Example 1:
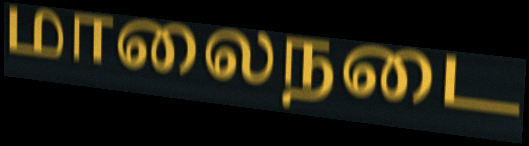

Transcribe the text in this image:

மாலைநடை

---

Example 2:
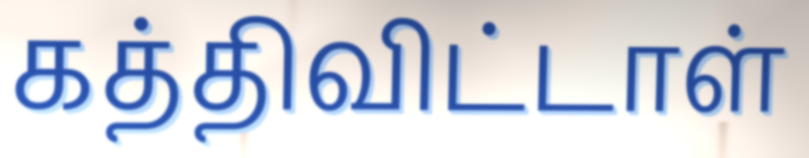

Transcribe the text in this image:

கத்திவிட்டாள்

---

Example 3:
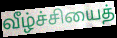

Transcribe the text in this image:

வீழ்ச்சியைத்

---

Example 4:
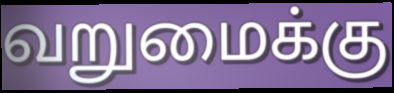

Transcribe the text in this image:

வறுமைக்கு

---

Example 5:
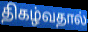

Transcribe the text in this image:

திகழ்வதால்